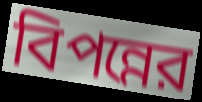
বিপন্নের